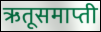
ऋतूसमाप्ती